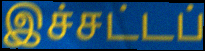
இச்சட்டப்